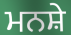
ਮਨਸ਼ੇ